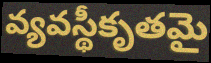
వ్యవస్థీకృతమై